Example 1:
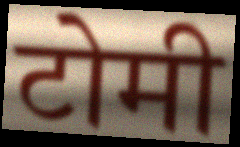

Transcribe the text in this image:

टोमी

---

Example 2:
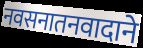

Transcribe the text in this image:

नवसनातनवादाने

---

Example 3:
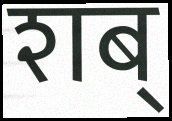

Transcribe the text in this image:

शब्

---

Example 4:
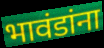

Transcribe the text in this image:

भावंडांना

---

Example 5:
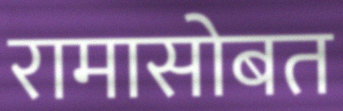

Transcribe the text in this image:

रामासोबत